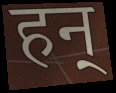
हन्